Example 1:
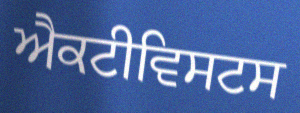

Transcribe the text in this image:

ਐਕਟੀਵਿਸਟਸ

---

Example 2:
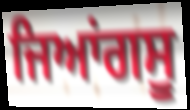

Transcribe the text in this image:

ਜਿਆਂਗਸੂ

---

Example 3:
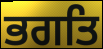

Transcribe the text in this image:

ਭਗਤਿ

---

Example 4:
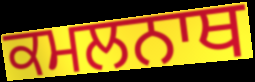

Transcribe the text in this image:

ਕਮਲਨਾਥ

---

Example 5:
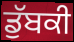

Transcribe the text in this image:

ਡੁੱਬਕੀ